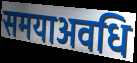
समयाअवधि